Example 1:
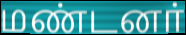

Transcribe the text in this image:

மண்டனர்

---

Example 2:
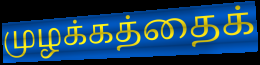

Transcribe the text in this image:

முழக்கத்தைக்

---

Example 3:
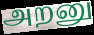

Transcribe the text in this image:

அறனு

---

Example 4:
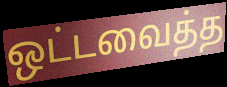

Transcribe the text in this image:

ஒட்டவைத்த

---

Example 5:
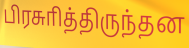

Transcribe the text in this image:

பிரசுரித்திருந்தன